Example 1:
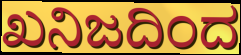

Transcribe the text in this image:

ಖನಿಜದಿಂದ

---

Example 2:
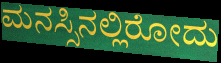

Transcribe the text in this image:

ಮನಸ್ಸಿನಲ್ಲಿರೋದು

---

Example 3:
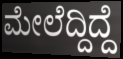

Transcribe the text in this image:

ಮೇಲೆದ್ದಿದ್ದೆ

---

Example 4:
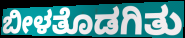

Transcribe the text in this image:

ಬೀಳತೊಡಗಿತು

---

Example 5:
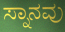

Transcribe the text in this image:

ಸ್ನಾನವು